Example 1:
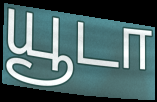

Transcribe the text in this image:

யூடா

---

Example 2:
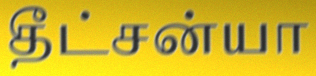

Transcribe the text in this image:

தீட்சன்யா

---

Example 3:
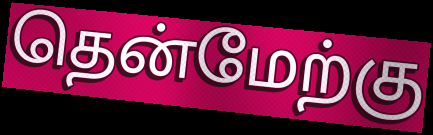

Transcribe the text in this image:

தென்மேற்கு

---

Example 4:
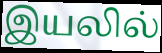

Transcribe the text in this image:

இயலில்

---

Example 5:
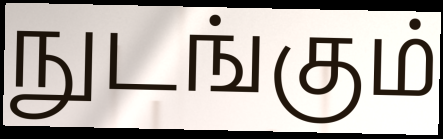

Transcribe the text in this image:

நுடங்கும்